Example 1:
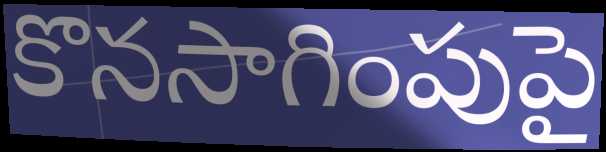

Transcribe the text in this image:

కొనసాగింపుపై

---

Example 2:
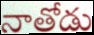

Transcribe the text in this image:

నాతోడు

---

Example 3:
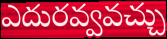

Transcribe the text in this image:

ఎదురవ్వవచ్చు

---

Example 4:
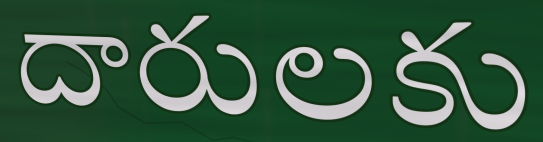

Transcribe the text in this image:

దారులకు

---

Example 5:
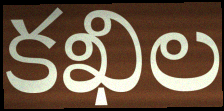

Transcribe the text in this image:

కఖిల